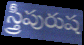
స్త్రీపురుష